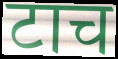
टाच